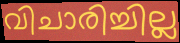
വിചാരിച്ചില്ല